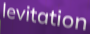
levitation